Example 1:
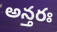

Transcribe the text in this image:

అన్తరః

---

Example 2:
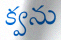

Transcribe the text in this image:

క్వను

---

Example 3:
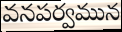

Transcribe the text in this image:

వనపర్వమున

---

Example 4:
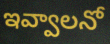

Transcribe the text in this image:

ఇవ్వాలనో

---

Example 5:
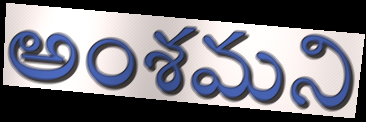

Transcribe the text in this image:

అంశమని